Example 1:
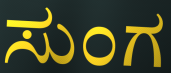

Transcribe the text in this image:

ಸುಂಗ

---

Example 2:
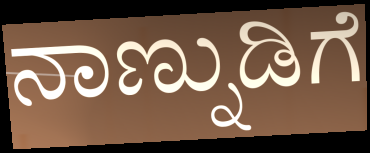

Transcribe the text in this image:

ನಾಣ್ನುಡಿಗೆ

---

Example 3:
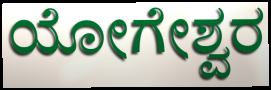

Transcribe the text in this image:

ಯೋಗೇಶ್ವರ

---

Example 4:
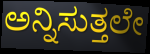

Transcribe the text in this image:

ಅನ್ನಿಸುತ್ತಲೇ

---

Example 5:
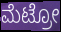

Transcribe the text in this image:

ಮೆಟ್ರೋ